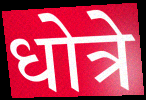
धोत्रे